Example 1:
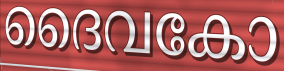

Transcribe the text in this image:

ദൈവകോ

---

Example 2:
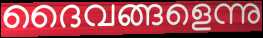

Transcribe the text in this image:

ദൈവങ്ങളെന്നു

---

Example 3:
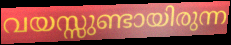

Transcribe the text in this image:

വയസ്സുണ്ടായിരുന്ന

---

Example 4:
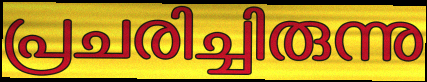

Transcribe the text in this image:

പ്രചരിച്ചിരുന്നു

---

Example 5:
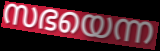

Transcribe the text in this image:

സഭയെന്ന